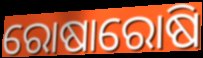
ରୋଷାରୋଷି